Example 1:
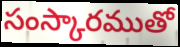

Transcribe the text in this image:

సంస్కారముతో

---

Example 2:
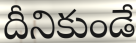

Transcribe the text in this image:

దీనికుండే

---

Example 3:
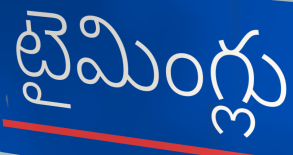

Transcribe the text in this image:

టైమింగ్లు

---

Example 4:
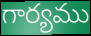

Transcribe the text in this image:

గార్యము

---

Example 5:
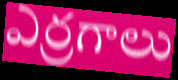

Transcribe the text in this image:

ఎర్రగాలు